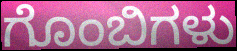
ಗೊಂಬಿಗಳು